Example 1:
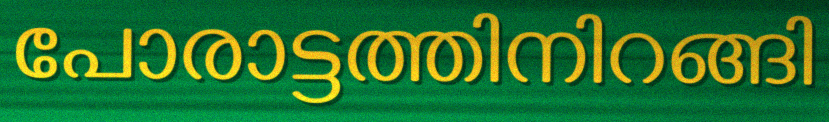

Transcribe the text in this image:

പോരാട്ടത്തിനിറങ്ങി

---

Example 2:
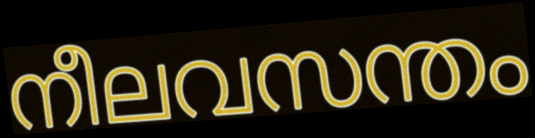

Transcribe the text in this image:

നീലവസന്തം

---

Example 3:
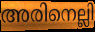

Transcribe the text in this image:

അരിനെല്ലി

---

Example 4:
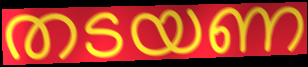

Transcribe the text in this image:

തടയണ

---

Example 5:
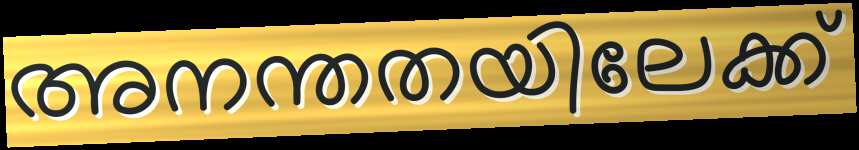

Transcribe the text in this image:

അനന്തതയിലേക്ക്